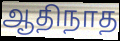
ஆதிநாத